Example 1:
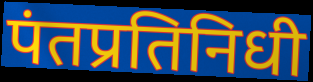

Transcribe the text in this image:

पंतप्रतिनिधी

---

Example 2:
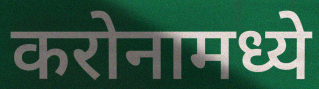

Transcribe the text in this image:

करोनामध्ये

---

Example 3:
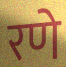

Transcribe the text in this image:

रणे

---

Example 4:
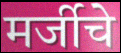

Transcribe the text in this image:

मर्जीचे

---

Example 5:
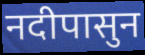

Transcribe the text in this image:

नदीपासुन